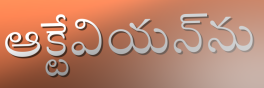
ఆక్టేవియన్‌ను